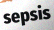
sepsis